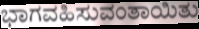
ಭಾಗವಹಿಸುವಂತಾಯಿತು